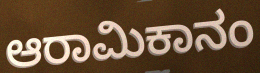
ಆರಾಮಿಕಾನಂ